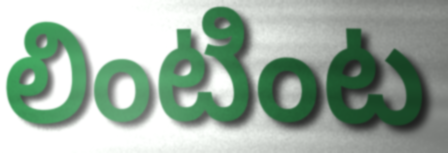
లింటింట